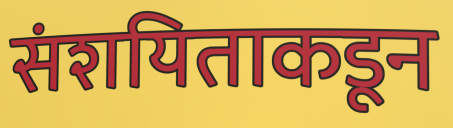
संशयिताकडून